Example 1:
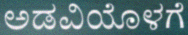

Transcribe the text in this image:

ಅಡವಿಯೊಳಗೆ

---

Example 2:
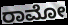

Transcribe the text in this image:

ರಾಮೋ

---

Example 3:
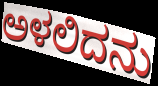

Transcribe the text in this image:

ಅಳಲಿದನು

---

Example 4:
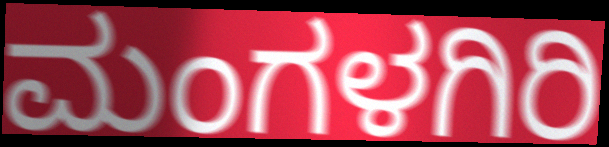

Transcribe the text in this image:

ಮಂಗಳಗಿರಿ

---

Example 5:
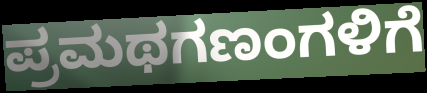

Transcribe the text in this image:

ಪ್ರಮಥಗಣಂಗಳಿಗೆ